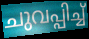
ചുവപ്പിച്ച്